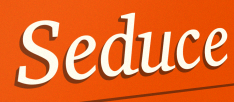
Seduce